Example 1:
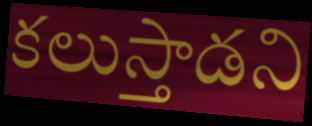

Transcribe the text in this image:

కలుస్తాడని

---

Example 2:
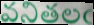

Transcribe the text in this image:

వనితలఁ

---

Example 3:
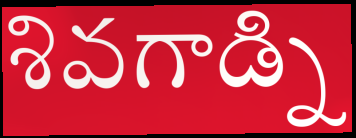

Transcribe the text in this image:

శివగాడ్ని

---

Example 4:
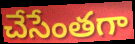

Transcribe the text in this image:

చేసేంతగా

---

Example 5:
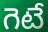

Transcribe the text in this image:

గెటే